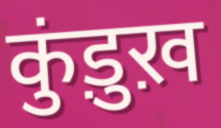
कुंड़ुख़